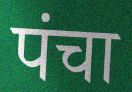
पंचा